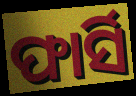
ଫାର୍ସି